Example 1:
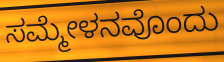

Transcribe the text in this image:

ಸಮ್ಮೇಳನವೊಂದು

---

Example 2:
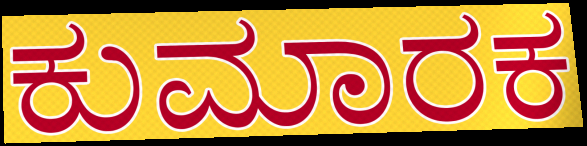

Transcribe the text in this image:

ಕುಮಾರಕ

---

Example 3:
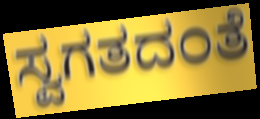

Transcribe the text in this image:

ಸ್ವಗತದಂತೆ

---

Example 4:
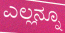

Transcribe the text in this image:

ಎಲ್ಲನ್ನೂ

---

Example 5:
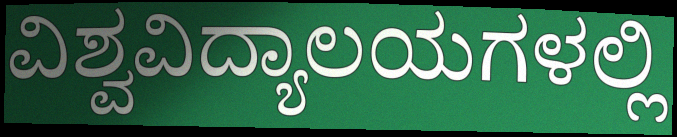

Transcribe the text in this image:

ವಿಶ್ವವಿದ್ಯಾಲಯಗಳಲ್ಲಿ